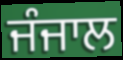
ਜੰਜਾਲ